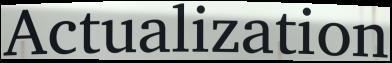
Actualization